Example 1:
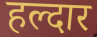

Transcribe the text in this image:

हल्दार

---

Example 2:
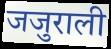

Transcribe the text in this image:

जजुराली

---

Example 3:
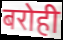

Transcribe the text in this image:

बरोही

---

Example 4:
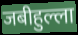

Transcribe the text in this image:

जबीहुल्ला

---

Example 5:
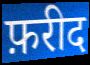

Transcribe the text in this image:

फ़रीद